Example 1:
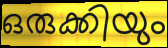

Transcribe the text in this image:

ഒരുക്കിയും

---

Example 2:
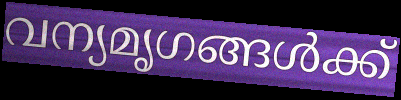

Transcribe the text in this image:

വന്യമൃഗങ്ങൾക്ക്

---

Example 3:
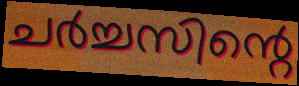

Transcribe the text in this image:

ചർച്ചസിന്റെ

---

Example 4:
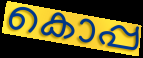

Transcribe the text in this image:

കൊപ്പ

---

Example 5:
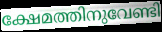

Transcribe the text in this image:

ക്ഷേമത്തിനുവേണ്ടി